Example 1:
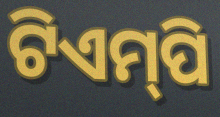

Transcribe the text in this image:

ଟିଏମ୍‌ପି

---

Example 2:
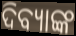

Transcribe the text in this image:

ଦିବ୍ୟାଙ୍କ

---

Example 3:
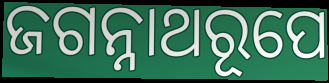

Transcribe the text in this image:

ଜଗନ୍ନାଥରୂପେ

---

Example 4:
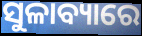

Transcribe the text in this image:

ସୁଳାବ୍ୟାରେ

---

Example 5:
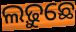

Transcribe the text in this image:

ଲଢ଼ୁଛେ